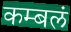
कम्बलं